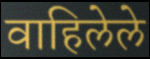
वाहिलेले